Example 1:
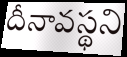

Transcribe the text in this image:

దీనావస్థని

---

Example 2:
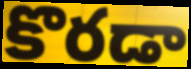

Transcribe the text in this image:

కొరడా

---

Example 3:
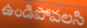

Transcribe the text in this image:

ఉండిపోవలసి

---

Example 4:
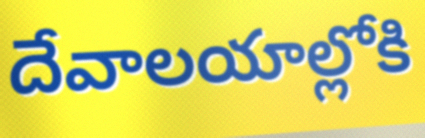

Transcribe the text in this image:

దేవాలయాల్లోకి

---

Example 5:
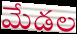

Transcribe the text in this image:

మేడల